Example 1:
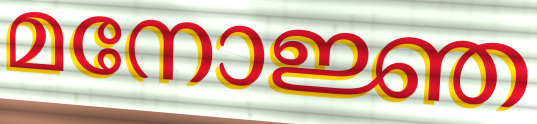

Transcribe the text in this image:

മനോജ്ഞ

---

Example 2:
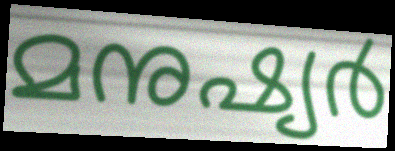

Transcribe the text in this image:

മനുഷ്യർ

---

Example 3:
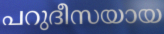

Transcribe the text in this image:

പറുദീസയായ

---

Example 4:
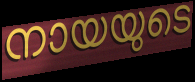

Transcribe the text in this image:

നായയുടെ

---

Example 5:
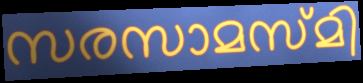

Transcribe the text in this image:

സരസാമസ്മി